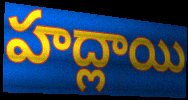
హద్లాయి